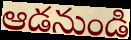
ఆడనుండి